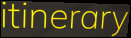
itinerary